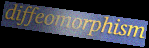
diffeomorphism